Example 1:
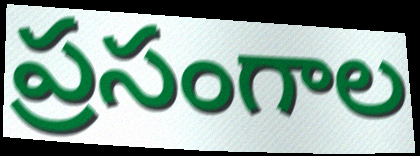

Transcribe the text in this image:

ప్రసంగాల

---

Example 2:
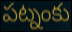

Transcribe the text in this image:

పట్నంకు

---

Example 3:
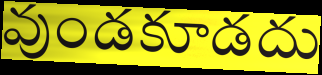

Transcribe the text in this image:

వుండకూడదు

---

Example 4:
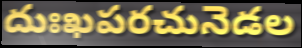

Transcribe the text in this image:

దుఃఖపరచునెడల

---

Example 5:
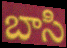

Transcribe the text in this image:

బాసి